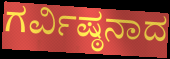
ಗರ್ವಿಷ್ಠನಾದ